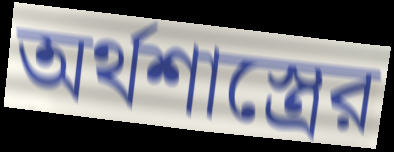
অর্থশাস্ত্রের